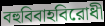
বহুবিবাহবিরোধী